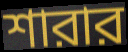
শারার